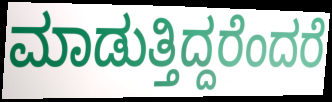
ಮಾಡುತ್ತಿದ್ದರೆಂದರೆ